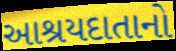
આશ્રયદાતાનો